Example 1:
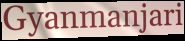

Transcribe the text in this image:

Gyanmanjari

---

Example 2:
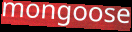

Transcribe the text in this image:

mongoose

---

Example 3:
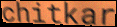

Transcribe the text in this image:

chitkar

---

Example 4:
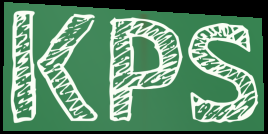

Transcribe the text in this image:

KPS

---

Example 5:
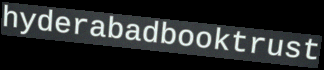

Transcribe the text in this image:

hyderabadbooktrust